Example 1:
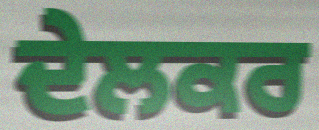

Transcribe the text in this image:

ਦੇਲਕਰ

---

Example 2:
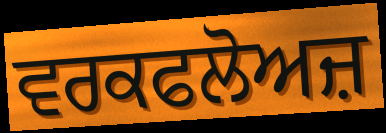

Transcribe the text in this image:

ਵਰਕਫਲੋਅਜ਼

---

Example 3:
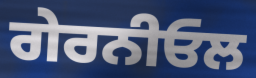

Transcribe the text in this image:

ਗੇਰਨੀਓਲ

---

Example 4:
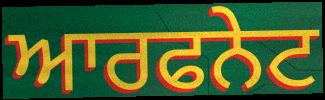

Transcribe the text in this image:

ਆਰਫਨੇਟ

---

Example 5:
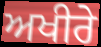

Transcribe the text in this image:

ਅਖੀਰੇ